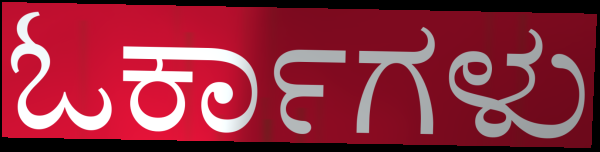
ಓರ್ಕಾಗಳು